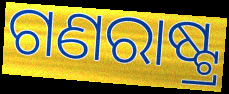
ଗଣରାଷ୍ଟ୍ର